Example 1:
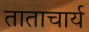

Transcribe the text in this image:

ताताचार्य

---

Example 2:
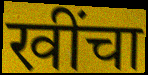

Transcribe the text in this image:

खींचा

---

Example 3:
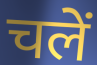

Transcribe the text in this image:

चलें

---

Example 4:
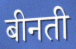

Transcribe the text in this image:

बीनती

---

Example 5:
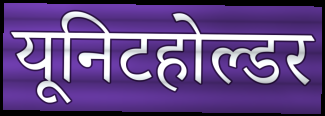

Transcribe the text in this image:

यूनिटहोल्डर